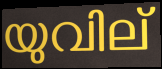
യുവില്